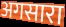
अगसारा